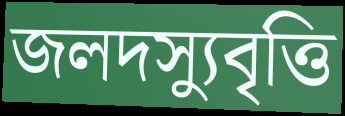
জলদস্যুবৃত্তি